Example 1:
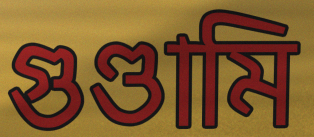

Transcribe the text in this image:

গুণ্ডামি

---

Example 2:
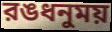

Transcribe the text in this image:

রঙধনুময়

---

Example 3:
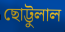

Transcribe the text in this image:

ছোট্টুলাল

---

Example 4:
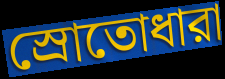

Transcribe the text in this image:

স্রোতোধারা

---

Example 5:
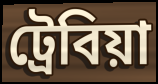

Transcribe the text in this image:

ট্রেবিয়া